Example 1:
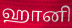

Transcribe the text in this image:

ஹானி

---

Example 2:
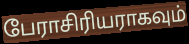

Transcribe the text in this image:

பேராசிரியராகவும்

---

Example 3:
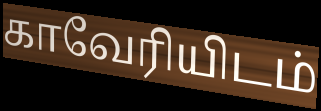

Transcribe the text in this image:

காவேரியிடம்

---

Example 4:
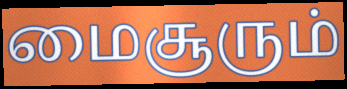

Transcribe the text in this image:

மைசூரும்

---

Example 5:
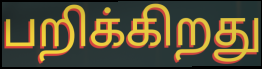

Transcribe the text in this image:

பறிக்கிறது